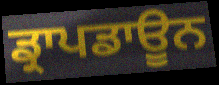
ਡ੍ਰਾਪਡਾਊਨ